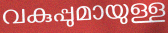
വകുപ്പുമായുള്ള